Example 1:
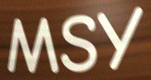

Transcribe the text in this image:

MSY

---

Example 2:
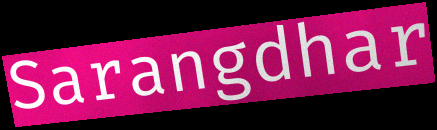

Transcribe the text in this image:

Sarangdhar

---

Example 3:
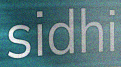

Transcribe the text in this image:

sidhi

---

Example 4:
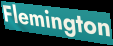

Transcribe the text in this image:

Flemington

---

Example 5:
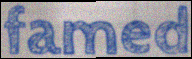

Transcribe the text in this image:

famed